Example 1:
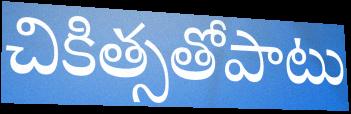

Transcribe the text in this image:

చికిత్సతోపాటు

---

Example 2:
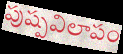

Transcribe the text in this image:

పుష్పవిలాపం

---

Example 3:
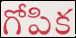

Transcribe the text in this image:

గోపిక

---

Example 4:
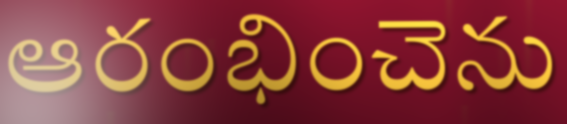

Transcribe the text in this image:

ఆరంభించెను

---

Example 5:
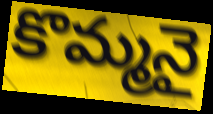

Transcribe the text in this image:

కొమ్మనై